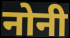
नोनी